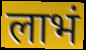
लाभं